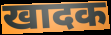
खादक